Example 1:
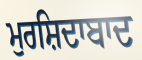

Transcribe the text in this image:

ਮੁਰਸ਼ਿਦਾਬਾਦ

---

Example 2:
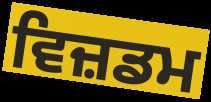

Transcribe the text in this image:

ਵਿਜ਼ਡਮ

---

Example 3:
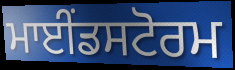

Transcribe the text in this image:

ਮਾਈਂਡਸਟੋਰਮ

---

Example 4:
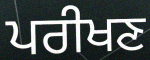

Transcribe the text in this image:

ਪਰੀਖਣ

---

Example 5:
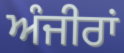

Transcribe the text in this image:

ਅੰਜੀਰਾਂ